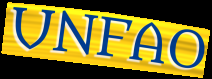
UNFAO